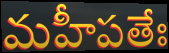
మహీపతేః